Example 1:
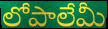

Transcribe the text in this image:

లోపాలేమీ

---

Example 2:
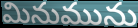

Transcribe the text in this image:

మినుమును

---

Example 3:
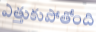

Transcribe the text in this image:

ఎత్తుకుపోతోంది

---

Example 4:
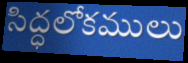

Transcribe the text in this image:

సిద్ధలోకములు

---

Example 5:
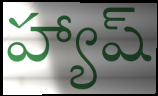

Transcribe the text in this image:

హ్యాష్